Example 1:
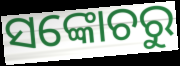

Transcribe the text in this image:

ସଙ୍କୋଚରୁ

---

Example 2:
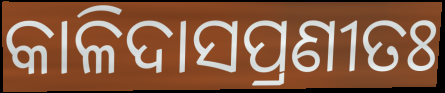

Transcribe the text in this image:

କାଳିଦାସପ୍ରଣୀତଃ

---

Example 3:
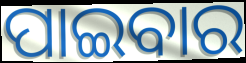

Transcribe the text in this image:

ପାଇବାର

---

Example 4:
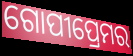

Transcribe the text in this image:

ଗୋପୀପ୍ରେମର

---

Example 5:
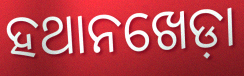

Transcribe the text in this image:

ହଥାନଖେଡ଼ା